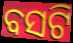
ବସଟି